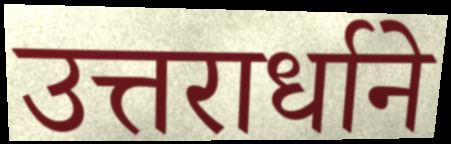
उत्तरार्धाने